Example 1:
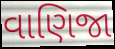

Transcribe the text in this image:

વાણિજા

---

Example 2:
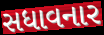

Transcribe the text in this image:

સધાવનાર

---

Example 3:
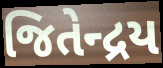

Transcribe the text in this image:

જિતેન્દ્રય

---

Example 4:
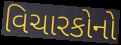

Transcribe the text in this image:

વિચારકોનો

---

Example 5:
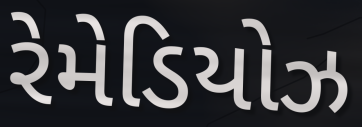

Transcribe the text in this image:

રેમેડિયોઝ